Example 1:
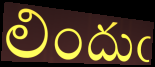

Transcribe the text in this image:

లిందుఁ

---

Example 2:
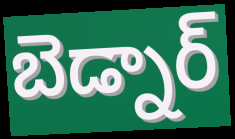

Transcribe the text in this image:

బెడ్నార్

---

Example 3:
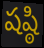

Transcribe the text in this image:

షష్ఠి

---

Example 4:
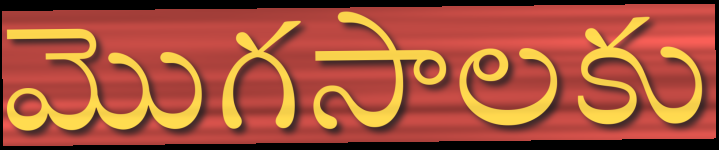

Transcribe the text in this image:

మొగసాలకు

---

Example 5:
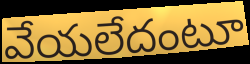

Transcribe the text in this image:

వేయలేదంటూ